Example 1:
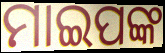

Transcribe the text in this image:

ମାଇପଙ୍କ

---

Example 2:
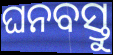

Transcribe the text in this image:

ଘନବସ୍ତୁ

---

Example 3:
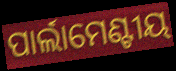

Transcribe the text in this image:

ପାର୍ଲାମେଣ୍ଟୀୟ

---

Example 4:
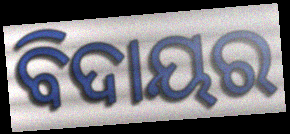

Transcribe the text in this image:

ବିଦାୟର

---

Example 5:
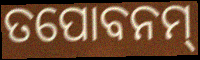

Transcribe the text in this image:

ତପୋବନମ୍